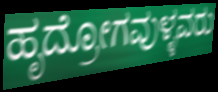
ಹೃದ್ರೋಗವುಳ್ಳವರು